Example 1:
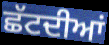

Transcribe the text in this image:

ਛੱਟਦੀਆਂ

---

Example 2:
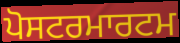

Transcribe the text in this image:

ਪੋਸਟਰਮਾਰਟਮ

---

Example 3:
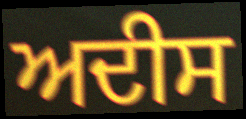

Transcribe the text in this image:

ਅਦੀਸ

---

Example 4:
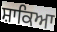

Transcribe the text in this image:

ਸ਼ਾਕਿਆ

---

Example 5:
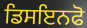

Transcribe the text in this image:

ਡਿਸਇਨਫੋ